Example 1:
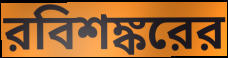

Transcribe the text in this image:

রবিশঙ্করের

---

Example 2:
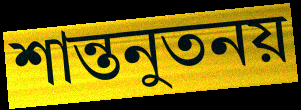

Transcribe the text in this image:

শান্তনুতনয়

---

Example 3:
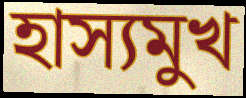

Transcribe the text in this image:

হাস্যমুখ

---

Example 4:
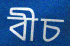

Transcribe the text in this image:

বীচ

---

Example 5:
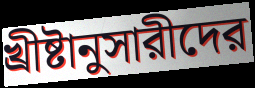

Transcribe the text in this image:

খ্রীষ্টানুসারীদের